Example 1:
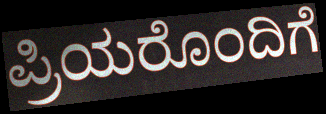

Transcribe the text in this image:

ಪ್ರಿಯರೊಂದಿಗೆ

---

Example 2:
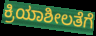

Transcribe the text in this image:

ಕ್ರಿಯಾಶೀಲತೆಗೆ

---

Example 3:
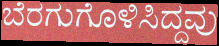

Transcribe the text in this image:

ಬೆರಗುಗೊಳಿಸಿದ್ದವು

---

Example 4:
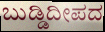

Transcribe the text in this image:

ಬುಡ್ಡಿದೀಪದ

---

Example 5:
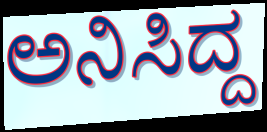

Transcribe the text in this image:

ಅನಿಸಿದ್ದ